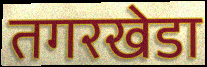
तगरखेडा